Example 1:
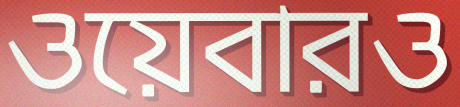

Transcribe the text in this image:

ওয়েবারও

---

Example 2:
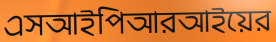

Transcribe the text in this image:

এসআইপিআরআইয়ের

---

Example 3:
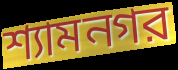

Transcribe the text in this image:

শ্যামনগর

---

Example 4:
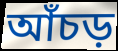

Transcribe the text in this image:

আঁচড়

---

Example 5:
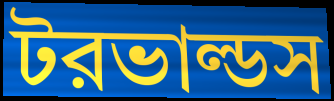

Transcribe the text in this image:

টরভাল্ডস